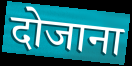
दोजाना